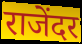
राजेंदर